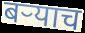
बऱ्याच